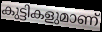
കുട്ടികളുമാണ്